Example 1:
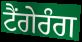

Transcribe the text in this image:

ਟੈਂਗੇਰੰਗ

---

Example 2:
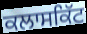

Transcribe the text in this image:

ਕਲਾਸਕਿੱਟ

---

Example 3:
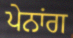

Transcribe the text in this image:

ਪੇਨਾਂਗ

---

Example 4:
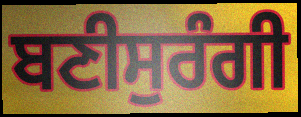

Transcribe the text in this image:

ਬਣੀਸੁਰੰਗੀ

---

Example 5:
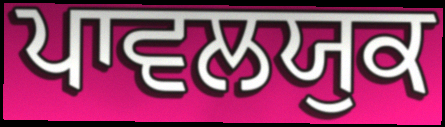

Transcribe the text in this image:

ਪਾਵਲਯੁਕ